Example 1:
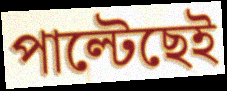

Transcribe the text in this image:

পাল্টেছেই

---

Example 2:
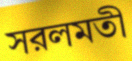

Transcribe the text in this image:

সরলমতী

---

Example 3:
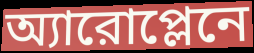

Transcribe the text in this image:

অ্যারোপ্লেনে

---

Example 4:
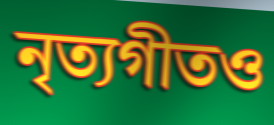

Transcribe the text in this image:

নৃত্যগীতও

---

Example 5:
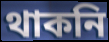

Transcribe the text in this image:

থাকনি